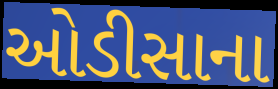
ઓડીસાના